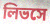
লিভসে